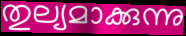
തുല്യമാക്കുന്നു